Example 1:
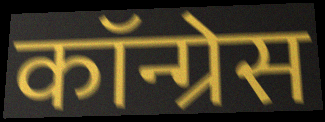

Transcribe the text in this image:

कॉन्ग्रेस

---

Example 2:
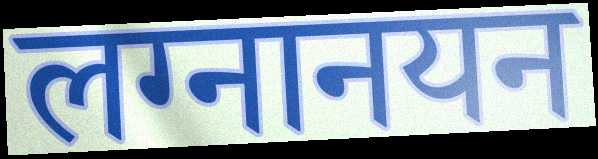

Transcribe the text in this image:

लग्नानयन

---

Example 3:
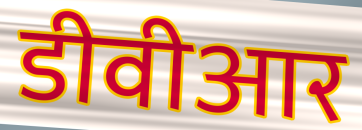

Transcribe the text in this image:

डीवीआर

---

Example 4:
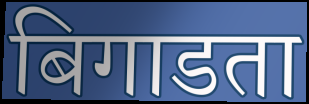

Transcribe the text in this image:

बिगाडता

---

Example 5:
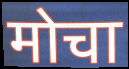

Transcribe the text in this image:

मोचा